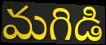
మగిడి